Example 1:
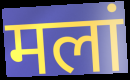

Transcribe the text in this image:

मलां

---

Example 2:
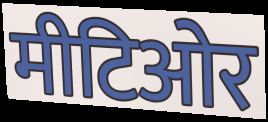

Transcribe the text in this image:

मीटिओर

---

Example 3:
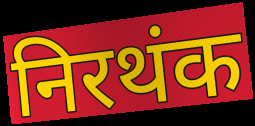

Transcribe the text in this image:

निरथंक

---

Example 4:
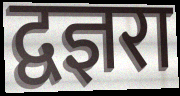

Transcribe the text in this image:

द्वज्ञरा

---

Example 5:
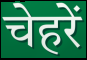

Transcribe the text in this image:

चेहरें